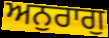
ਅਨੁਰਾਗੁ